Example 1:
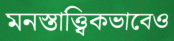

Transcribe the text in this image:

মনস্তাত্ত্বিকভাবেও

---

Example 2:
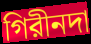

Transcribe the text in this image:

গিরীনদা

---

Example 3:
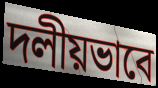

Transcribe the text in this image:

দলীয়ভাবে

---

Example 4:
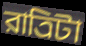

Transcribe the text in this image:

রাত্রিটা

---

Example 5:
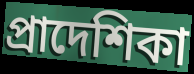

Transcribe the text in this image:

প্রাদেশিকা